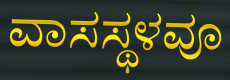
ವಾಸಸ್ಥಳವೂ